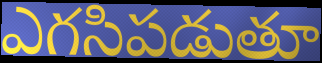
ఎగసిపడుతూ